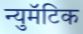
न्युमॅटिक